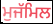
ਮੁਜੱਮਿਲ